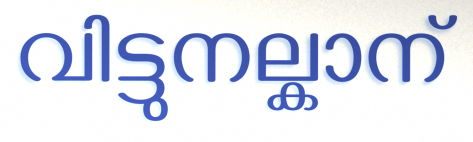
വിട്ടുനല്കാന്